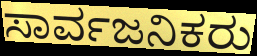
ಸಾರ್ವಜನಿಕರು